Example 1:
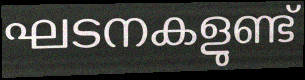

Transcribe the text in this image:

ഘടനകളുണ്ട്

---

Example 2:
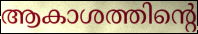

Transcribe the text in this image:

ആകാശത്തിന്റെ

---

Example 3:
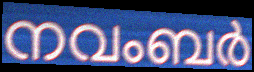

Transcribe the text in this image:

നവംബർ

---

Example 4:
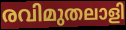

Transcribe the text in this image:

രവിമുതലാളി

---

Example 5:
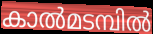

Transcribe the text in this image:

കാൽമടമ്പിൽ